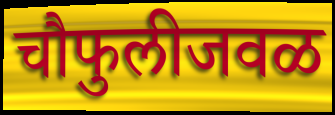
चौफुलीजवळ